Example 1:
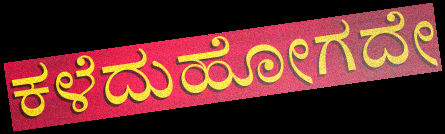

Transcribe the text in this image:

ಕಳೆದುಹೋಗದೇ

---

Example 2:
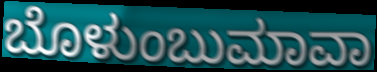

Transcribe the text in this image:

ಬೊಳುಂಬುಮಾವಾ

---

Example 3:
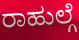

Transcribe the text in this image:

ರಾಹುಲ್ಗೆ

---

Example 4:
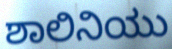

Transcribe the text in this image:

ಶಾಲಿನಿಯು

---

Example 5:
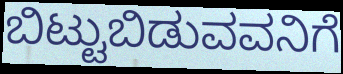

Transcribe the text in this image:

ಬಿಟ್ಟುಬಿಡುವವನಿಗೆ